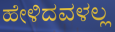
ಹೇಳಿದವಳಲ್ಲ